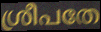
ശ്രീപതേ